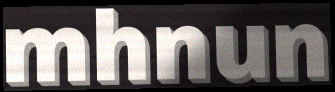
mhnun